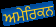
ਅਮੇਰਿਕਨ